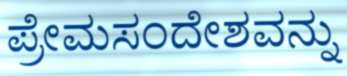
ಪ್ರೇಮಸಂದೇಶವನ್ನು